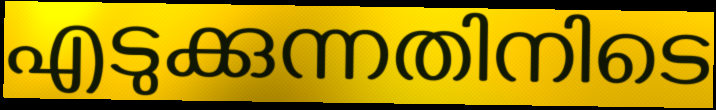
എടുക്കുന്നതിനിടെ